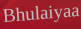
Bhulaiyaa